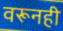
वरूनही